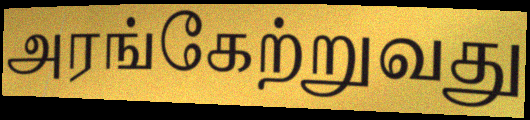
அரங்கேற்றுவது